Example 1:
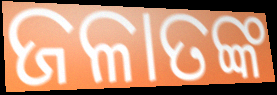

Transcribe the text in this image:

ଜଳାତଙ୍କ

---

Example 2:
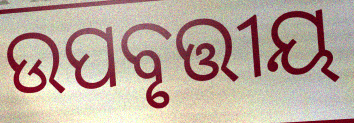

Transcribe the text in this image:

ଉପବୃତ୍ତୀୟ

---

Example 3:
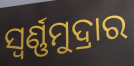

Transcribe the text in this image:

ସ୍ୱର୍ଣ୍ଣମୁଦ୍ରାର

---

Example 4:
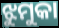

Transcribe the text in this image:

ଝୁମୁକା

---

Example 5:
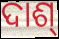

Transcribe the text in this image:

ଦାଶ୍